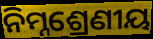
ନିମ୍ନଶ୍ରେଣୀୟ